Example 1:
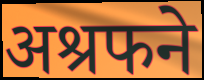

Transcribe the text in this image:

अश्रफने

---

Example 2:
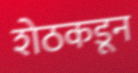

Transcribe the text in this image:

शेठकडून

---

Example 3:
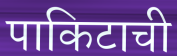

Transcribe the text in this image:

पाकिटाची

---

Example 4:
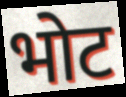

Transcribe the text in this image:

भोट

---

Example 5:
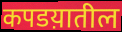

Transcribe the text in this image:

कपडय़ातील